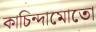
কাচিন্দামোতো